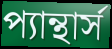
প্যান্থার্স